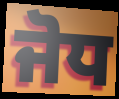
ਜੋਧ